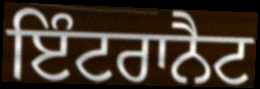
ਇੰਟਰਾਨੈਟ